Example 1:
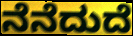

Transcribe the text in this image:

ನೆನೆದುದೆ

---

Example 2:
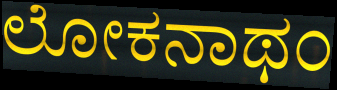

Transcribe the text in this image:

ಲೋಕನಾಥಂ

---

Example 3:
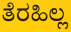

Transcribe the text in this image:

ತೆರಹಿಲ್ಲ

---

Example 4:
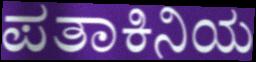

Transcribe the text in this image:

ಪತಾಕಿನಿಯ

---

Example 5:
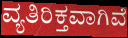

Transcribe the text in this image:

ವ್ಯತಿರಿಕ್ತವಾಗಿವೆ